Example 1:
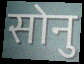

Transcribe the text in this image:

सोनु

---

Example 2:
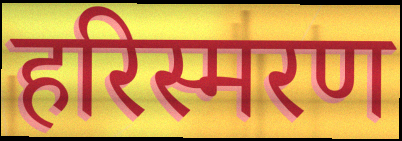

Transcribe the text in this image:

हरिस्मरण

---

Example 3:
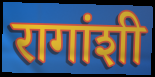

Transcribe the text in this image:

रागांशी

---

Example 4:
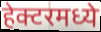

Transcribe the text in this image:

हेक्टरमध्ये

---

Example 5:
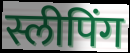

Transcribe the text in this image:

स्लीपिंग